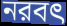
নরবৎ